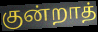
குன்றாத்